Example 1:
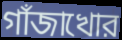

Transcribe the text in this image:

গাঁজাখোর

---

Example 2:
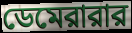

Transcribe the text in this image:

ডেমেরারার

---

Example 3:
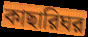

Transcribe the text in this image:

কাছারিঘর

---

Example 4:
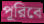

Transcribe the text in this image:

পূরিবে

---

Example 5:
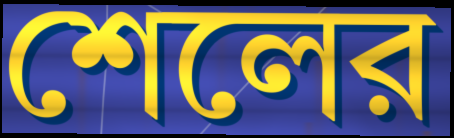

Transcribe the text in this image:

শেলের